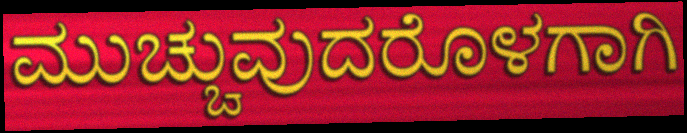
ಮುಚ್ಚುವುದರೊಳಗಾಗಿ